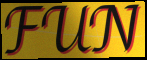
FUN